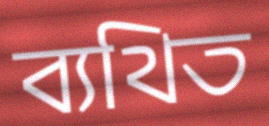
ব্যথিত